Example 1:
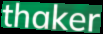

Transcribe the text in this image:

thaker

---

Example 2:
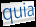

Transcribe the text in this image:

quia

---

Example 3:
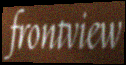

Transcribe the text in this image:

frontview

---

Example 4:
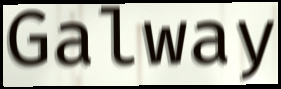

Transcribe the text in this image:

Galway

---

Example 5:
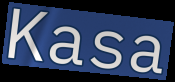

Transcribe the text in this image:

Kasa